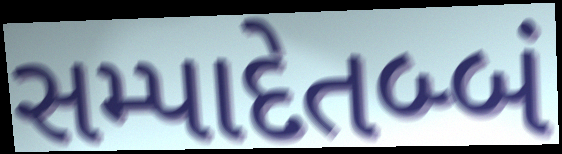
સમ્પાદેતબ્બં